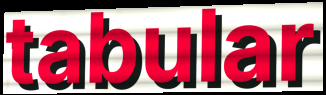
tabular